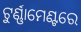
ଟୁର୍ଣ୍ଣାମେଣ୍ଟରେ